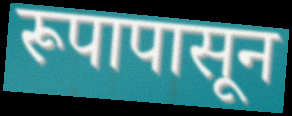
रूपापासून